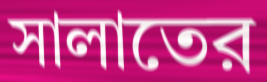
সালাতের